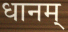
धानम्